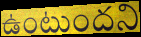
ఉంటుందని